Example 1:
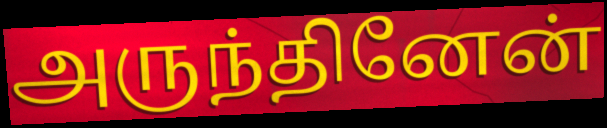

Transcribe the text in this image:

அருந்தினேன்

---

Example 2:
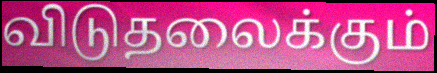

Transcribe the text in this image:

விடுதலைக்கும்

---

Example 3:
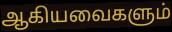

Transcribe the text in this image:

ஆகியவைகளும்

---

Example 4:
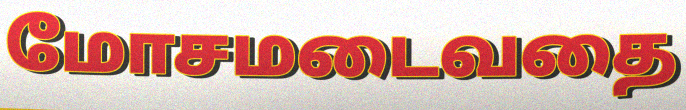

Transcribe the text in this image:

மோசமடைவதை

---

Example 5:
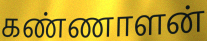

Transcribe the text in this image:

கண்ணாளன்